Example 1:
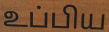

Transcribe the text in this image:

உப்பிய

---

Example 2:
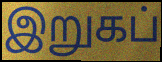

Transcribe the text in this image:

இறுகப்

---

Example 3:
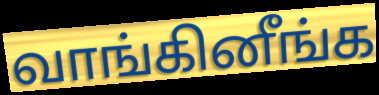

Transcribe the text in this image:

வாங்கினீங்க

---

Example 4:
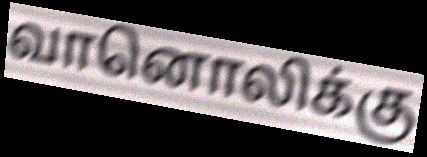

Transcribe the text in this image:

வானொலிக்கு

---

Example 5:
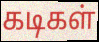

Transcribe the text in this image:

கடிகள்